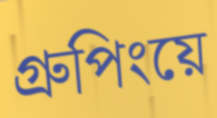
গ্রুপিংয়ে